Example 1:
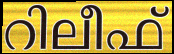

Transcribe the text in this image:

റിലീഫ്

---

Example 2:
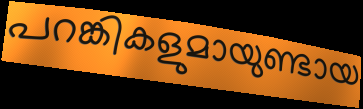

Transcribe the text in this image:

പറങ്കികളുമായുണ്ടായ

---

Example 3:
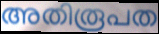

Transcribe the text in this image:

അതിരൂപത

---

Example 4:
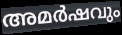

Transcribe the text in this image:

അമർഷവും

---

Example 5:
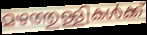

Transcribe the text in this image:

മഴത്തുള്ളികൾക്ക്